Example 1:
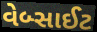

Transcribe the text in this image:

વેબ્સાઈટ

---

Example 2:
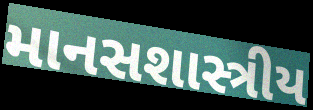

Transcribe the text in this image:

માનસશાસ્ત્રીય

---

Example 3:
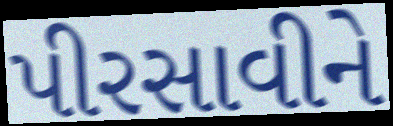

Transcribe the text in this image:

પીરસાવીને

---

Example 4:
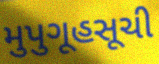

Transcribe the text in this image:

મુપુગૂહસૂચી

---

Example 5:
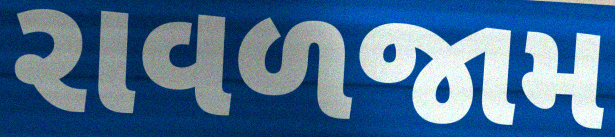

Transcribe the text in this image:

રાવળજામ